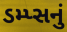
ડમ્પ્સનું